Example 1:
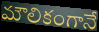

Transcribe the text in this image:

మౌలికంగానే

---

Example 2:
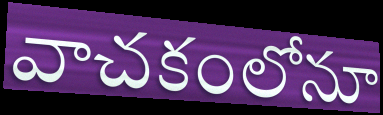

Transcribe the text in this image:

వాచకంలోనూ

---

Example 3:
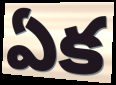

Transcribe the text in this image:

ఏక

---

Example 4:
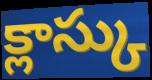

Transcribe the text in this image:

క్లాస్కు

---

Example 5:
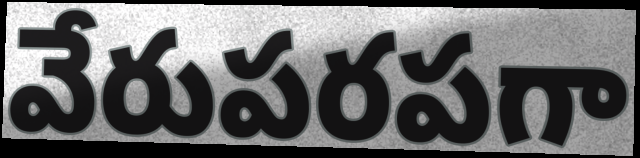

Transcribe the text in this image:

వేరుపరపగా